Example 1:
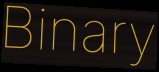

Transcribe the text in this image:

Binary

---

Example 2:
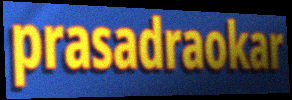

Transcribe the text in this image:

prasadraokar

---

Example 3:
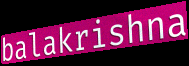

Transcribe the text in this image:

balakrishna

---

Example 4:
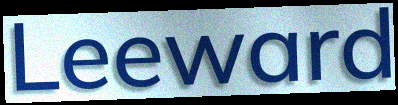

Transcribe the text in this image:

Leeward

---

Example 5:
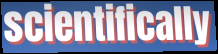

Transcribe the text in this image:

scientifically